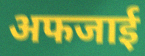
अफजाई